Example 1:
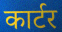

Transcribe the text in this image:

कार्टर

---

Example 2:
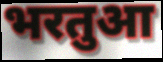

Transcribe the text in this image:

भरतुआ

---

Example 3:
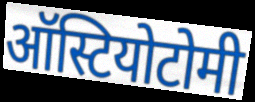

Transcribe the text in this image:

ऑस्टियोटोमी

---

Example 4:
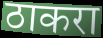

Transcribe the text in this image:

ठाकरा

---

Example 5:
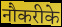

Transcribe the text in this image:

नौकरीके